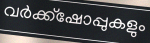
വർക്ക്ഷോപ്പുകളും